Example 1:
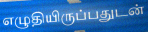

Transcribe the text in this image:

எழுதியிருப்பதுடன்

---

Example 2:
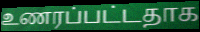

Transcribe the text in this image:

உணரப்பட்டதாக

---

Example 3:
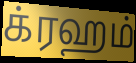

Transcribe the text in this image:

க்ரஹம்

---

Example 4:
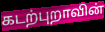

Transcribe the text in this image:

கடற்புறாவின்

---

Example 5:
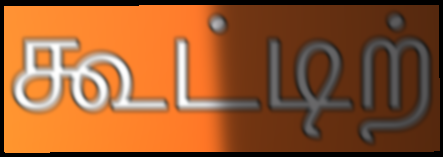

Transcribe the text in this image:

கூட்டிற்